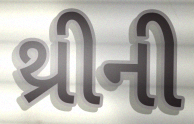
થ્રીની